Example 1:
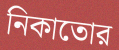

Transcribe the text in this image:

নিকাতোর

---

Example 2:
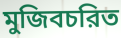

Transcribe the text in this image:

মুজিবচরিত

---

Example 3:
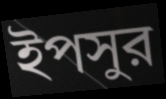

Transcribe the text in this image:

ইপসুর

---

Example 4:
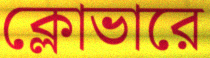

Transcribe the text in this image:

ক্লোভারে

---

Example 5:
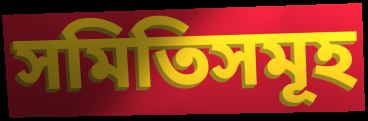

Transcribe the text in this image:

সমিতিসমূহ